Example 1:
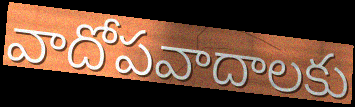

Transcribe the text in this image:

వాదోపవాదాలకు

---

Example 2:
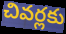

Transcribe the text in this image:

చివర్లకు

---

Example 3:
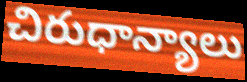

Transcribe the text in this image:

చిరుధాన్యాలు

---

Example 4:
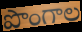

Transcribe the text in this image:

పొంగాల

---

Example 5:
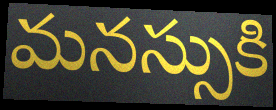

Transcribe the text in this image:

మనస్సుకి